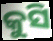
କୁସି